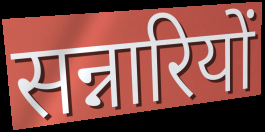
सन्नारियों